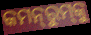
କମନ୍‍ରୁମ୍‍କୁ